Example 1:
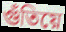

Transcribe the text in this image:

গুঁতিয়ে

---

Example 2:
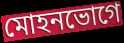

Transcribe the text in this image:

মোহনভোগে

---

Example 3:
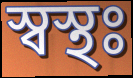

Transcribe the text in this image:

স্বস্থঃ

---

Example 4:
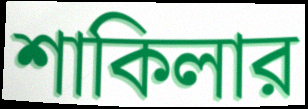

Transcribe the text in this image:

শাকিলার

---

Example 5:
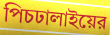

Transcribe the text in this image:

পিচঢালাইয়ের